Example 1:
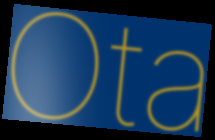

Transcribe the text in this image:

Ota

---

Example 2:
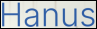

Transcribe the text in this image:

Hanus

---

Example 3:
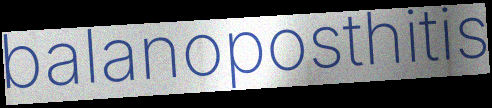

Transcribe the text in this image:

balanoposthitis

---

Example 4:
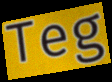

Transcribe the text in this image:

Teg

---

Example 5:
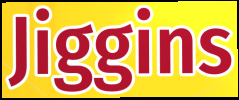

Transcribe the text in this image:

Jiggins